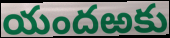
యందఱకు